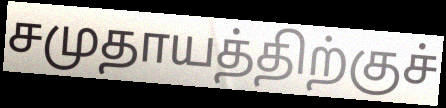
சமுதாயத்திற்குச்